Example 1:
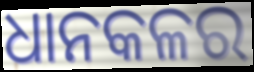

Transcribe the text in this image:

ଧାନକଳର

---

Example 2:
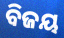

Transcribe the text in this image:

ବିଜୟ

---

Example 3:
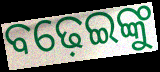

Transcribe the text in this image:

ବଢ଼େଇଙ୍କୁ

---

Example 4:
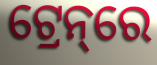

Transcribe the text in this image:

ଟ୍ରେନ୍‌ରେ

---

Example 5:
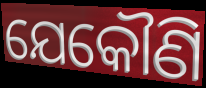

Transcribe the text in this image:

ଯେକୌଣି